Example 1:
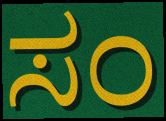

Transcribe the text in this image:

ಸಂ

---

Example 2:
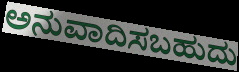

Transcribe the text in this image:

ಅನುವಾದಿಸಬಹುದು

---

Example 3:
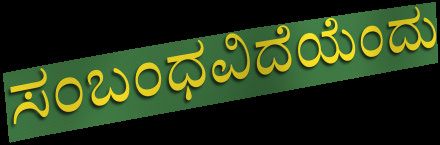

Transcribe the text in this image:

ಸಂಬಂಧವಿದೆಯೆಂದು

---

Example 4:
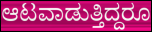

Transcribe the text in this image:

ಆಟವಾಡುತ್ತಿದ್ದರೂ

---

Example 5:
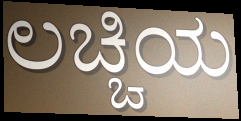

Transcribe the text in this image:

ಲಚ್ಚಿಯ